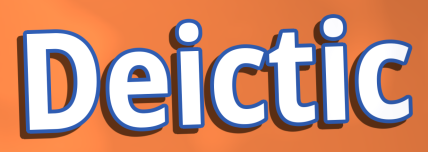
Deictic